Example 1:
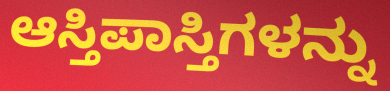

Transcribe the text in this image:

ಆಸ್ತಿಪಾಸ್ತಿಗಳನ್ನು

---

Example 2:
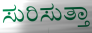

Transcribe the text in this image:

ಸುರಿಸುತ್ತಾ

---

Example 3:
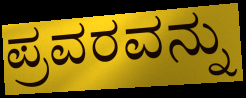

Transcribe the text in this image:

ಪ್ರವರವನ್ನು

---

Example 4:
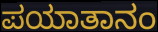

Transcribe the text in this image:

ಪಯಾತಾನಂ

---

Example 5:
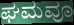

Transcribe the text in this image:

ಘಮವೂ